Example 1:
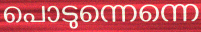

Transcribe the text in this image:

പൊടുന്നെന്നെ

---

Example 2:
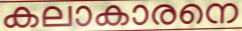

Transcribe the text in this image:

കലാകാരനെ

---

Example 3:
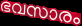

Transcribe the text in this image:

ഭവസാരം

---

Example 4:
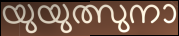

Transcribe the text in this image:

യുയുത്സുനാ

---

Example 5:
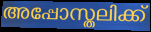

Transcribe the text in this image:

അപ്പോസ്തലിക്ക്